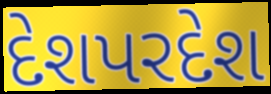
દેશપરદેશ